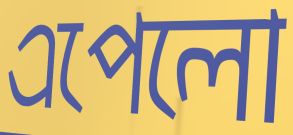
এপেলো